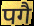
पगै